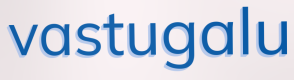
vastugalu